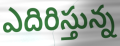
ఎదిరిస్తున్న